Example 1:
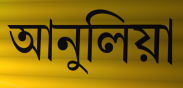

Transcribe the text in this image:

আনুলিয়া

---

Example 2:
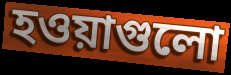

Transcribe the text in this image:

হওয়াগুলো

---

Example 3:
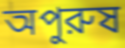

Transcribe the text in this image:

অপুরুষ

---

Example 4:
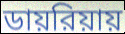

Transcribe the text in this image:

ডায়রিয়ায়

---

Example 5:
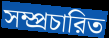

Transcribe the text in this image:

সম্প্রচারিত